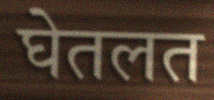
घेतलत